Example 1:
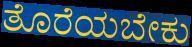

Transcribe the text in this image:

ತೊರೆಯಬೇಕು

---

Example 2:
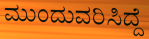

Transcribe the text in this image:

ಮುಂದುವರಿಸಿದ್ದೆ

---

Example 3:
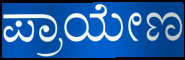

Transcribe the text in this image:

ಪ್ರಾಯೇಣ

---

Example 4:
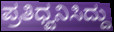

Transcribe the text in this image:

ಪ್ರತಿಧ್ವನಿಸಿದ್ದು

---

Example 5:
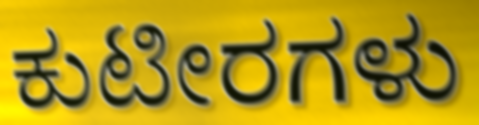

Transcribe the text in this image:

ಕುಟೀರಗಳು